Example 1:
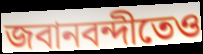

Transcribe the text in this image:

জবানবন্দীতেও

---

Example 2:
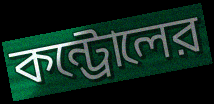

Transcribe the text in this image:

কন্ট্রোলের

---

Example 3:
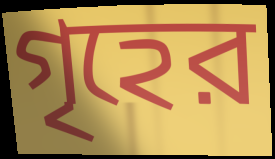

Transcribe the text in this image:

গৃহের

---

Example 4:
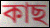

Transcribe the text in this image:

কাছ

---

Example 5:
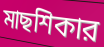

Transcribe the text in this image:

মাছশিকার